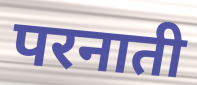
परनाती